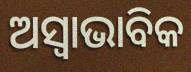
ଅସ୍ଵାଭାବିକ